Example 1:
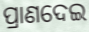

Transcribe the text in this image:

ପ୍ରାଣଦେଇ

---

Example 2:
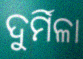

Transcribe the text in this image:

ଦୁର୍ମିଳା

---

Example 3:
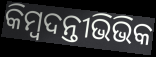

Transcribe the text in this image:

କିମ୍ବଦନ୍ତୀଭିଭିକ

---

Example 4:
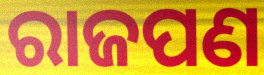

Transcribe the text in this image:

ରାଜପଣ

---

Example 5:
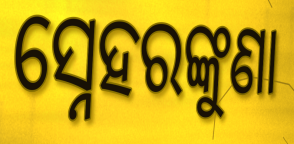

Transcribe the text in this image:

ସ୍ନେହରଙ୍କୁଣା